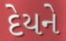
દેયને